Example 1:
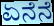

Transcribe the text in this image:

ಏನೆನೆ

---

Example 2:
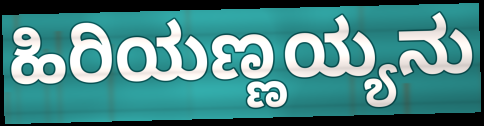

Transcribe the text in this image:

ಹಿರಿಯಣ್ಣಯ್ಯನು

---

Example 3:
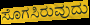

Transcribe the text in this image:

ಸೊಗಸಿರುವುದು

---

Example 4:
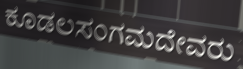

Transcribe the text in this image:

ಕೂಡಲಸಂಗಮದೇವರು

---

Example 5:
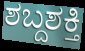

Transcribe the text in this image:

ಶಬ್ದಶಕ್ತಿ